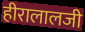
हीरालालजी